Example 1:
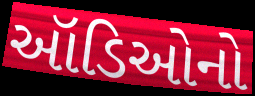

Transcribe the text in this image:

ઑડિઓનો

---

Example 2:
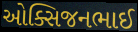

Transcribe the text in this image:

ઓક્સિજનભાઈ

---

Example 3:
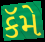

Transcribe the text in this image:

કૅમે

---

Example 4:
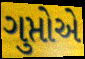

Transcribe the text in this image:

ગુપ્તોએ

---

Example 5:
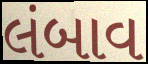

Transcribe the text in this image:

લંબાવ